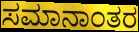
ಸಮಾನಾಂತರ